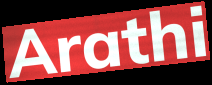
Arathi